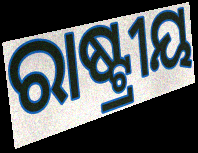
ରାଷ୍ଟ୍ରୀୟ